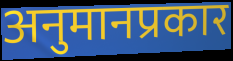
अनुमानप्रकार